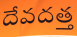
దేవదత్త